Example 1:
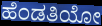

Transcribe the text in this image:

ಹೆಂಡತಿಯೋ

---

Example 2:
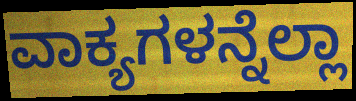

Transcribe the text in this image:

ವಾಕ್ಯಗಳನ್ನೆಲ್ಲಾ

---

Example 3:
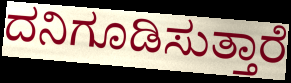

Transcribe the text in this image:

ದನಿಗೂಡಿಸುತ್ತಾರೆ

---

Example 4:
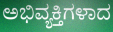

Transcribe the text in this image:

ಅಭಿವ್ಯಕ್ತಿಗಳಾದ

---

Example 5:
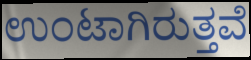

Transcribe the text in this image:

ಉಂಟಾಗಿರುತ್ತವೆ